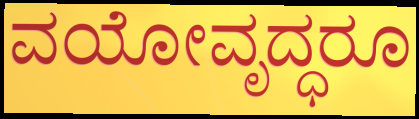
ವಯೋವೃದ್ಧರೂ